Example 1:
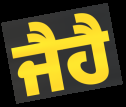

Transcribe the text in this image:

ਜੈਹੈ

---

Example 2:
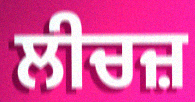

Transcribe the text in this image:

ਲੀਚਜ਼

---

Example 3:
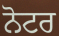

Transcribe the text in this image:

ਨੋਟਰ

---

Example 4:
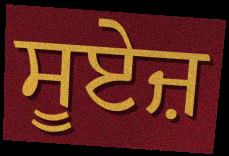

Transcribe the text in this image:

ਸੂਏਜ਼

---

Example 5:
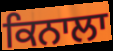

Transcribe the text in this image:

ਕਿਨਾਲਾ